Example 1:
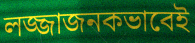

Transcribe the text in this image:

লজ্জাজনকভাবেই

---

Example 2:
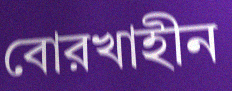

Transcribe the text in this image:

বোরখাহীন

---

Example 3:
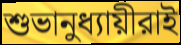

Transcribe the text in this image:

শুভানুধ্যায়ীরাই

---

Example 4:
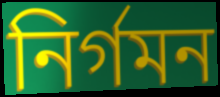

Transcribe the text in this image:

নির্গমন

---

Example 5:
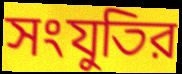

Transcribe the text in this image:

সংযুতির